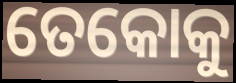
ତେକୋକୁ